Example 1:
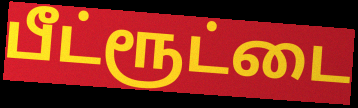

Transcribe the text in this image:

பீட்ரூட்டை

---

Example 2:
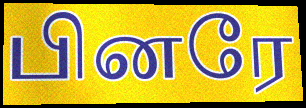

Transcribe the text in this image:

பினரே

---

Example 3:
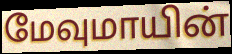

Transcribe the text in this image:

மேவுமாயின்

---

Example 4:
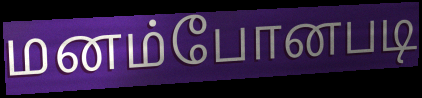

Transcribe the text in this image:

மனம்போனபடி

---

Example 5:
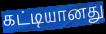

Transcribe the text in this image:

கட்டியானது